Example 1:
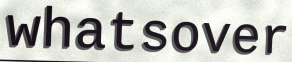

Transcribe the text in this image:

whatsover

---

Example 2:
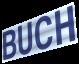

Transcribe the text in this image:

BUCH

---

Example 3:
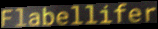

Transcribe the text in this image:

Flabellifer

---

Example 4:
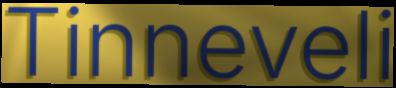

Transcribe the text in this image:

Tinneveli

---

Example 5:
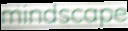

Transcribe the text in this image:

mindscape